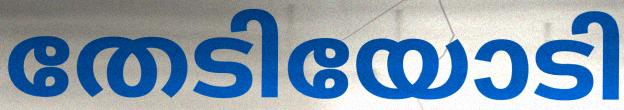
തേടിയോടി